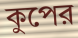
কুপের